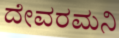
ದೇವರಮನಿ